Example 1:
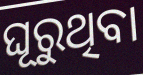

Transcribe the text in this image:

ଘୂରୁଥିବା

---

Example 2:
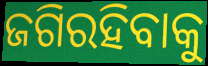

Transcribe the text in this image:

ଜଗିରହିବାକୁ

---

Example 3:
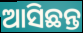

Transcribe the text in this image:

ଆସିଛନ୍ତ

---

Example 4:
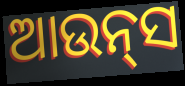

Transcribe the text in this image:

ଆଉନ୍‍ସ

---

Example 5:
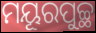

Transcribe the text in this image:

ମୟୂରପୁଚ୍ଛ